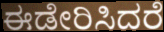
ಈಡೇರಿಸಿದರೆ